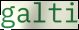
galti